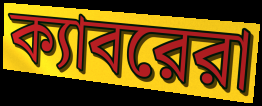
ক্যাবরেরা